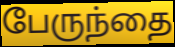
பேருந்தை